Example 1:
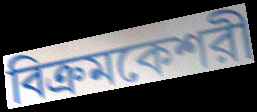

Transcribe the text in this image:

বিক্রমকেশরী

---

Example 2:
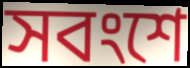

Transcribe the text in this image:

সবংশে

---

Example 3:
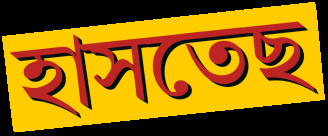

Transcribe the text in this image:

হাসতেছ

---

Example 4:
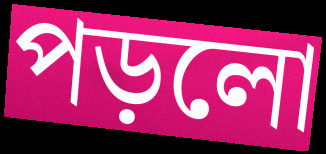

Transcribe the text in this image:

পড়লো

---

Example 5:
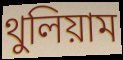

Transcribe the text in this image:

থুলিয়াম